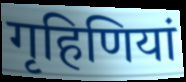
गृहिणियां